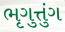
ભૃગુત્તુંગ